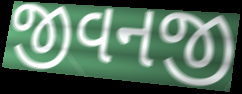
જીવનજી